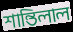
শান্তিলাল